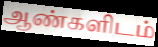
ஆண்களிடம்